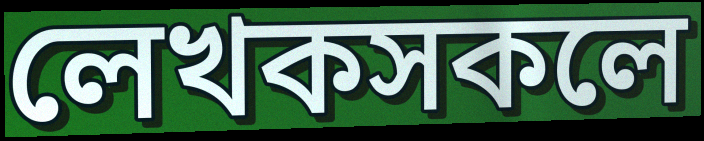
লেখকসকলে